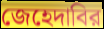
জেহেদাবির